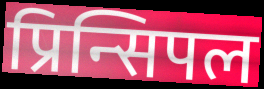
प्रिन्सिपल